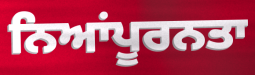
ਨਿਆਂਪੂਰਨਤਾ